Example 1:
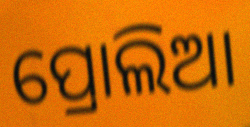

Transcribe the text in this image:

ପ୍ରୋଲିଆ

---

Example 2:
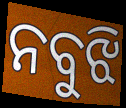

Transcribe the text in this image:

ନବୁଝି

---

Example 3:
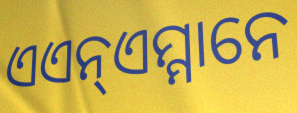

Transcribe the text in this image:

ଏଏନ୍ଏମ୍ମାନେ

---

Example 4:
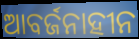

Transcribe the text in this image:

ଆବର୍ଜନାହୀନ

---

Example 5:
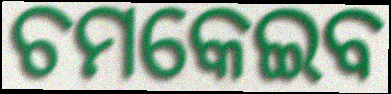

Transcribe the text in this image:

ଚମକେଇବ